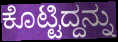
ಕೊಟ್ಟಿದ್ದನ್ನು